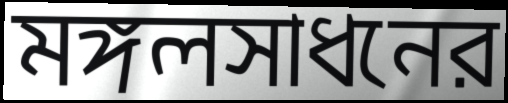
মঙ্গলসাধনের